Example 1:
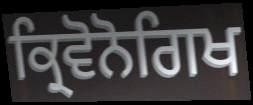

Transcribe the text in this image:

ਕ੍ਰਿਵੋਨੋਗਿਖ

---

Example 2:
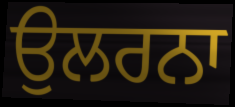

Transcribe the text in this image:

ਉਲਰਨਾ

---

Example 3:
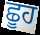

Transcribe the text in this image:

ਛੂਹ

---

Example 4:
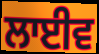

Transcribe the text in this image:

ਲਾਈਵ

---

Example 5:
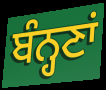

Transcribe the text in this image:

ਬੰਨ੍ਹਣਾਂ